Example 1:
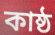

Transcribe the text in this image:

কাষ্ঠ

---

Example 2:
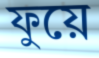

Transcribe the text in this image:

ফুয়ে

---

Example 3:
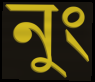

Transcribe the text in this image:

নুং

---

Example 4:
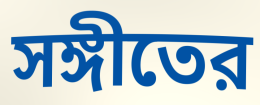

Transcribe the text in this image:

সঙ্গীতের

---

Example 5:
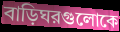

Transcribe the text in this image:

বাড়িঘরগুলোকে